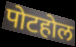
पोटहोल